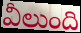
వీలుంది